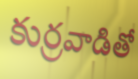
కుర్రవాడితో